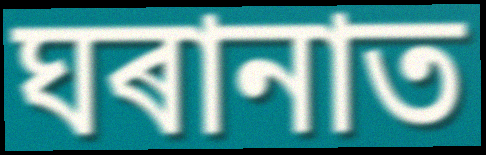
ঘৰানাত